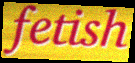
fetish